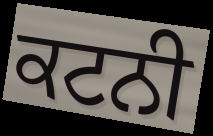
ਕਟਨੀ